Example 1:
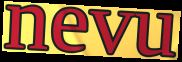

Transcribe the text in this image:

nevu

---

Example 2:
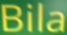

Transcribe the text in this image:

Bila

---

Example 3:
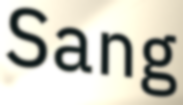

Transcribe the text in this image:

Sang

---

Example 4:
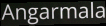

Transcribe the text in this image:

Angarmala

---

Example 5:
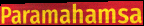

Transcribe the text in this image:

Paramahamsa